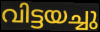
വിട്ടയച്ചു